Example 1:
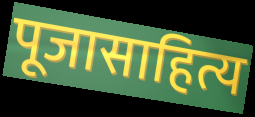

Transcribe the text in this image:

पूजासाहित्य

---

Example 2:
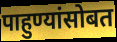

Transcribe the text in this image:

पाहुण्यांसोबत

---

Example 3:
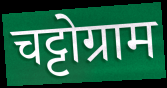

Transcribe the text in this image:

चट्टोग्राम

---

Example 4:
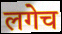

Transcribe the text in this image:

लगेच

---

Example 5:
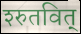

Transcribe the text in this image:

श्रुतवित्